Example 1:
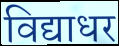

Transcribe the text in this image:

विद्याधर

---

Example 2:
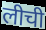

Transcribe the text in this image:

लीची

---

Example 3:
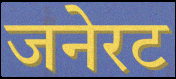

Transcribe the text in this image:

जनेरट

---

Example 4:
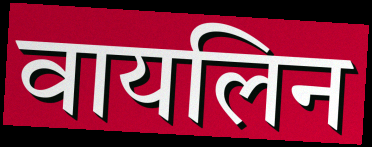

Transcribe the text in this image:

वायलिन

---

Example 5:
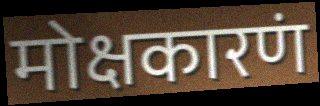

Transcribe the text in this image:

मोक्षकारणं